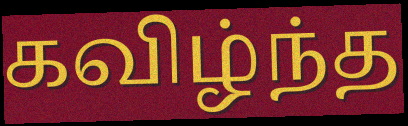
கவிழ்ந்த